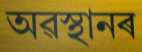
অৱস্থানৰ